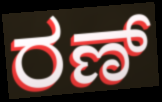
ರಣ್